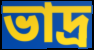
ভাদ্ৰ